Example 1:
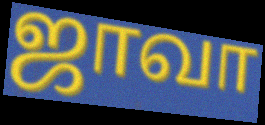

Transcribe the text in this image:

ஜாவா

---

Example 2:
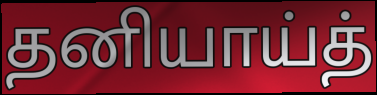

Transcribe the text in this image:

தனியாய்த்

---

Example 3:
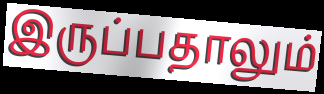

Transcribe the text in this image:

இருப்பதாலும்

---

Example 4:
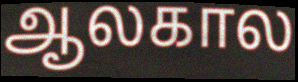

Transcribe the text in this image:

ஆலகால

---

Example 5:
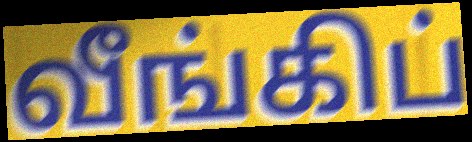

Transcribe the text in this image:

வீங்கிப்